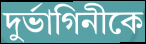
দুর্ভাগিনীকে